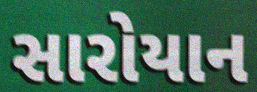
સારોયાન